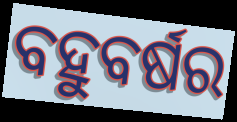
ବହୁବର୍ଷର